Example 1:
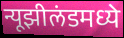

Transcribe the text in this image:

न्यूझीलंडमध्ये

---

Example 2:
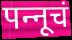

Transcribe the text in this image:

पन्नूचं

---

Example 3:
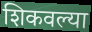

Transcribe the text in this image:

शिकवल्या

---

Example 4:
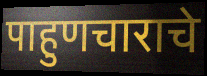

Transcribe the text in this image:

पाहुणचाराचे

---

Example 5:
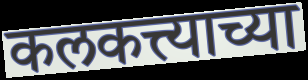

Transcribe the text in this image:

कलकत्त्याच्या